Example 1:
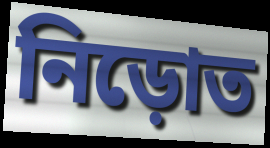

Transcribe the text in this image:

নিড়োত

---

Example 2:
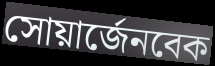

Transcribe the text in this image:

সোয়ার্জেনবেক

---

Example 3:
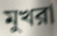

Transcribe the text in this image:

মুখরা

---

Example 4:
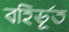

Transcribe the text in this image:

বহির্ভূত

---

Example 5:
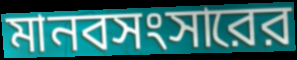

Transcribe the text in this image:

মানবসংসারের